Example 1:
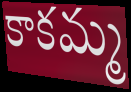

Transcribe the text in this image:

కాకమ్మ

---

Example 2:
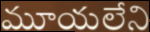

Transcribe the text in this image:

మూయలేని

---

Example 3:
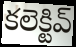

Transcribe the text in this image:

కలెక్టివ్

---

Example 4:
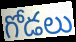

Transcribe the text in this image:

గోడలు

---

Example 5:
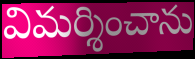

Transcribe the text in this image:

విమర్శించాను